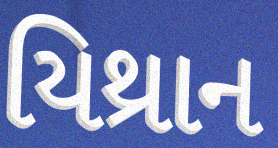
યિથ્રાન